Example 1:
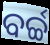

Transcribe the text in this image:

ବର୍ଚ୍ଚ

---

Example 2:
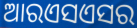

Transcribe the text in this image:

ଆରଏସଏସର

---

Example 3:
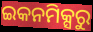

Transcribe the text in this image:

ଇକନମିକ୍ସରୁ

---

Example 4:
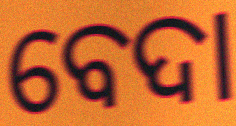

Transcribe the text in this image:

ବେଦା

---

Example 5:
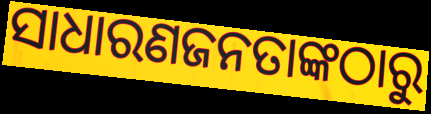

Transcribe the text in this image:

ସାଧାରଣଜନତାଙ୍କଠାରୁ